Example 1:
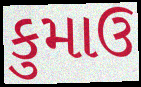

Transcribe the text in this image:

કુમાઉ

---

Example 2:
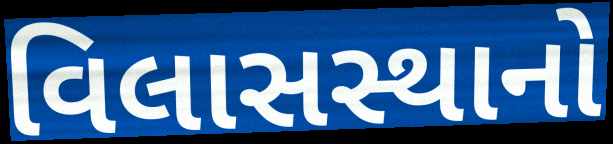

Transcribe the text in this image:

વિલાસસ્થાનો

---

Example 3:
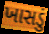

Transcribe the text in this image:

ખાસડું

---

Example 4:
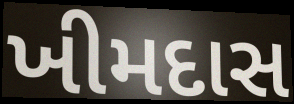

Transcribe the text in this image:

ખીમદાસ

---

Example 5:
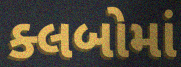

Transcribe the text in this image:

ક્લબોમાં